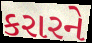
કરારને